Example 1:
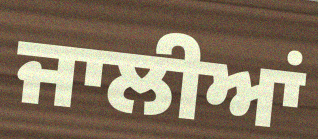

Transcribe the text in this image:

ਜਾਲੀਆਂ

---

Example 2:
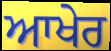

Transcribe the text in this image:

ਆਖੇਰ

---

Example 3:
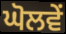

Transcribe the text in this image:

ਘੋਲਵੇਂ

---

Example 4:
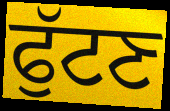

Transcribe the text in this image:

ਫੁੱਟਣ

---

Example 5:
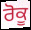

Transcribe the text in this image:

ਰੋਕੂ